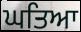
ਘਤਿਆ